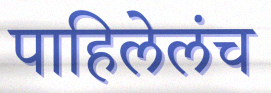
पाहिलेलंच